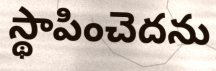
స్థాపించెదను